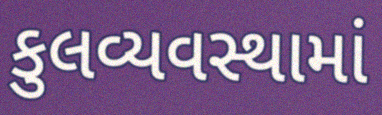
કુલવ્યવસ્થામાં